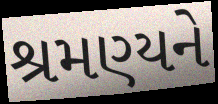
શ્રમણ્યને